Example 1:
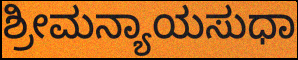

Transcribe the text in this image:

ಶ್ರೀಮನ್ಯಾಯಸುಧಾ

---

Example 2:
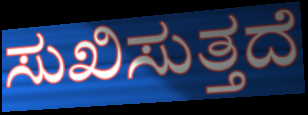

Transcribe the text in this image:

ಸುಖಿಸುತ್ತದೆ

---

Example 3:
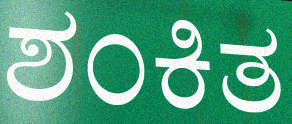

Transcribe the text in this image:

ಶಂಕಿತ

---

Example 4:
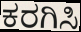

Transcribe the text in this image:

ಕರಗಿಸಿ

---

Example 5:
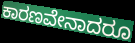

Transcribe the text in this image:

ಕಾರಣವೇನಾದರೂ